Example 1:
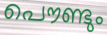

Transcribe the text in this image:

പൌണ്ടും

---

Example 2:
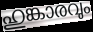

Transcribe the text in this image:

ഹുങ്കാരവും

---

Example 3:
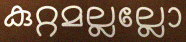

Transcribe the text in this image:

കുറ്റമല്ലല്ലോ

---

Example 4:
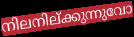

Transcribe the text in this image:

നിലനില്ക്കുന്നുവോ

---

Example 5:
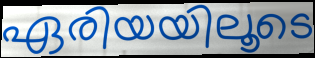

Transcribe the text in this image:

ഏരിയയിലൂടെ